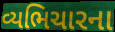
વ્યભિચારના